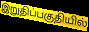
இறுதிப்பகுதியில்